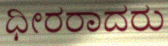
ಧೀರರಾದರು